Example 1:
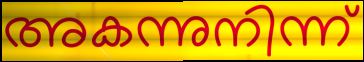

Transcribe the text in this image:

അകന്നുനിന്ന്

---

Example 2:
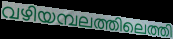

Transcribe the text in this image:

വഴിയമ്പലത്തിലെത്തി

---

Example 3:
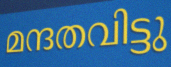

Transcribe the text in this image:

മന്ദതവിട്ടു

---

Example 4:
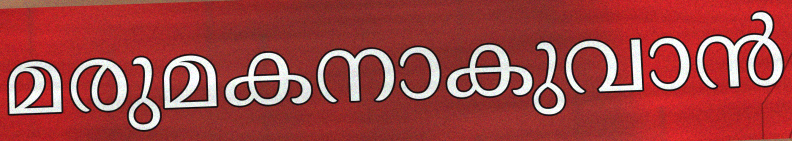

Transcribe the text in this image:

മരുമകനാകുവാൻ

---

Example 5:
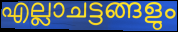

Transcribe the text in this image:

എല്ലാചട്ടങ്ങളും